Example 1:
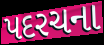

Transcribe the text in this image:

પદરચના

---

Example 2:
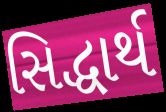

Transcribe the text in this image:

સિદ્ધાર્થ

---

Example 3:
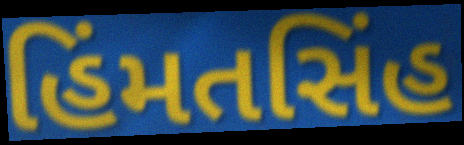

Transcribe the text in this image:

હિંમતસિંહ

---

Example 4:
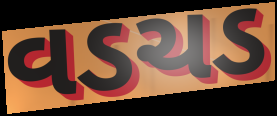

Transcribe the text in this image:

વડચડ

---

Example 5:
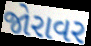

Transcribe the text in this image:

જોરાવર